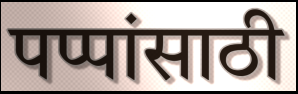
पप्पांसाठी